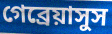
গেব্রেয়াসুস